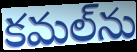
కమల్‌ను